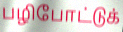
பழிபோட்டுக்